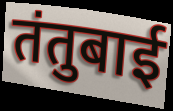
तंतुबाई